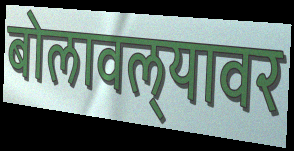
बोलावल्यावर